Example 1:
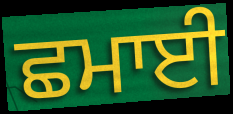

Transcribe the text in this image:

ਛਮਾਈ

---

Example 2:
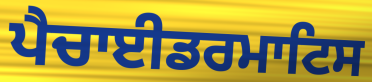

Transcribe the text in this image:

ਪੈਚਾਈਡਰਮਾਟਿਸ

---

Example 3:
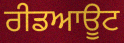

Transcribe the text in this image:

ਰੀਡਆਊਟ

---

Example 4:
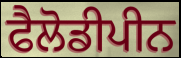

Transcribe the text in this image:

ਫੈਲੋਡੀਪੀਨ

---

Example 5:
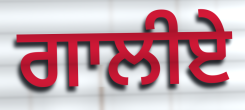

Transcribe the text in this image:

ਗਾਲੀਏ